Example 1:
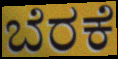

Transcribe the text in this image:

ಬೆರಕೆ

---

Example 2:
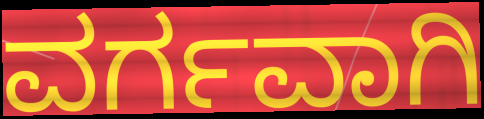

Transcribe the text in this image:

ವರ್ಗವಾಗಿ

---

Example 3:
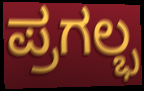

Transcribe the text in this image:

ಪ್ರಗಲ್ಭ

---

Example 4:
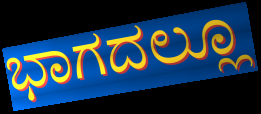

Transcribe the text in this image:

ಭಾಗದಲ್ಲೂ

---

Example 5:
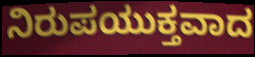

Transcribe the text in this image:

ನಿರುಪಯುಕ್ತವಾದ